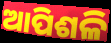
ଆପିଶଳି